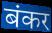
बंकर